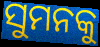
ସୁମନକୁ